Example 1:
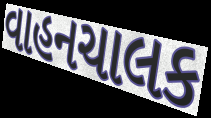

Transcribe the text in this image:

વાહનચાલક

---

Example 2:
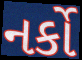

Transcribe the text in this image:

નર્કો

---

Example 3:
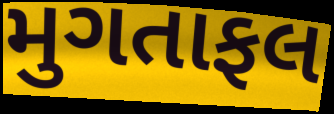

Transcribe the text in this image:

મુગતાફલ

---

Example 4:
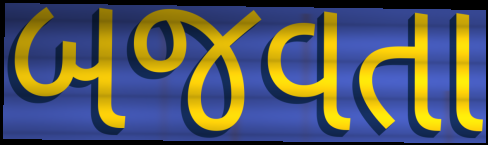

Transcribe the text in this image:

બજવતા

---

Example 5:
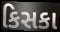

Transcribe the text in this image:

કિસકા